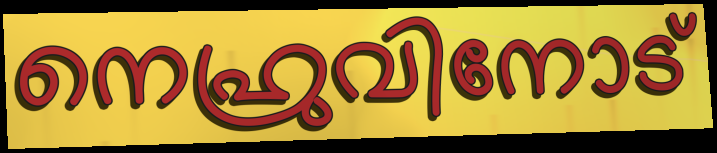
നെഹ്രുവിനോട്